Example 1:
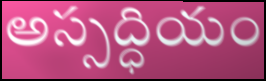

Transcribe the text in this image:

అస్సద్ధియం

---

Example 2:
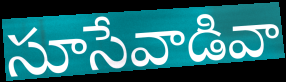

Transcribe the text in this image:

సూసేవాడివా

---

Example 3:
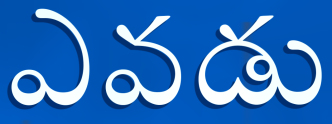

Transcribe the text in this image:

ఎవడు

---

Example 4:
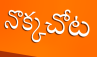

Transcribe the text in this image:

నొక్కచోట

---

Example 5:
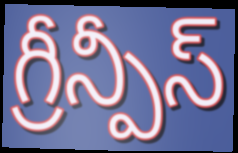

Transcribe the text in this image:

గ్రీన్పీస్